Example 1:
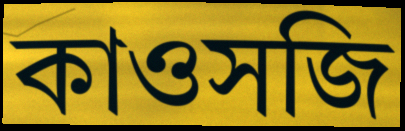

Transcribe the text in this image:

কাওসজি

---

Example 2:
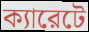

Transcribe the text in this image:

ক্যারেটে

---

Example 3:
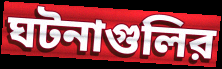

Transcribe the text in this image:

ঘটনাগুলির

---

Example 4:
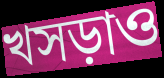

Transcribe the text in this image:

খসড়াও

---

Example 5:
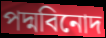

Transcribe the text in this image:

পদ্মবিনোদ